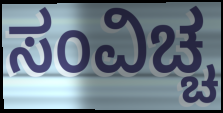
ಸಂವಿಚ್ಚ